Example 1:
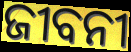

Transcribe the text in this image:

ଜୀବନୀ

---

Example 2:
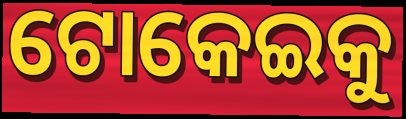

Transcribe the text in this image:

ଟୋକେଇକୁ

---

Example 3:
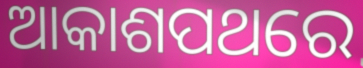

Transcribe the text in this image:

ଆକାଶପଥରେ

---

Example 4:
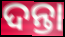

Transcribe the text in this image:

ଦନ୍ତା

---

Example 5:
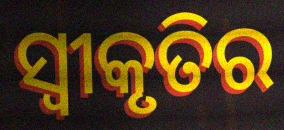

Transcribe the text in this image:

ସ୍ୱୀକୃତିର